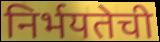
निर्भयतेची